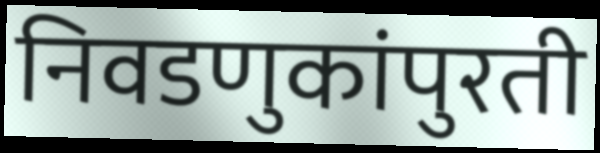
निवडणुकांपुरती